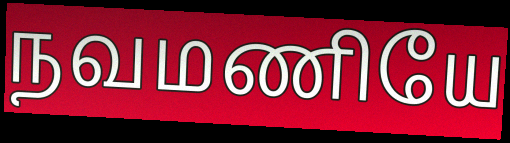
நவமணியே